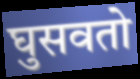
घुसवतो